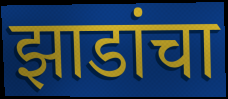
झाडांचा